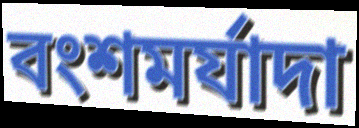
বংশমর্যাদা